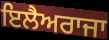
ਇਲੈਅਰਾਜਾ